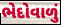
ભેદોવાળું